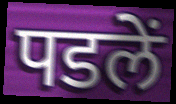
पडलें